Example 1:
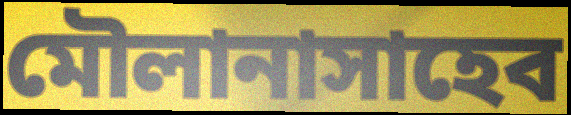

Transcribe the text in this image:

মৌলানাসাহেব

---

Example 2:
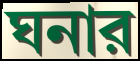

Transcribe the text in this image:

ঘনার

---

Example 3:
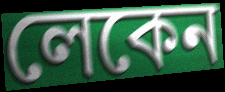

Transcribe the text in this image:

লেকেন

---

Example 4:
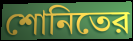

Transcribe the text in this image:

শোনিতের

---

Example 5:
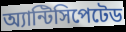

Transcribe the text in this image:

অ্যান্টিসিপেটেড